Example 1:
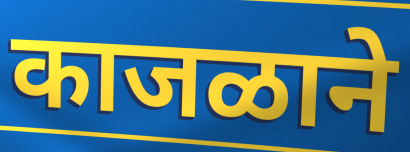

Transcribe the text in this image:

काजळाने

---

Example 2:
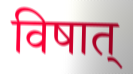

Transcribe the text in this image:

विषात्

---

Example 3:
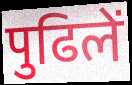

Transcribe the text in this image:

पुढिलें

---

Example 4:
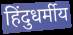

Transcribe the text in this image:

हिंदुधर्मीय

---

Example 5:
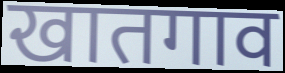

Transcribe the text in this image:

खातगाव